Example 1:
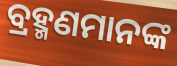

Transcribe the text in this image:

ବ୍ରହ୍ମଣମାନଙ୍କ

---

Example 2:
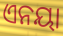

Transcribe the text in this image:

ଏନୟା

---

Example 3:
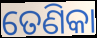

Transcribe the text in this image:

ତେଣିକା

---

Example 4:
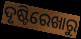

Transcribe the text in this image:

ଦୃଷ୍ଟିରେଖାରୁ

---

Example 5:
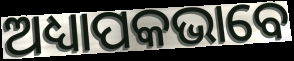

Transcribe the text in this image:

ଅଧ୍ୟାପକଭାବେ